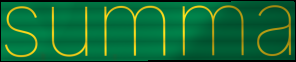
summa